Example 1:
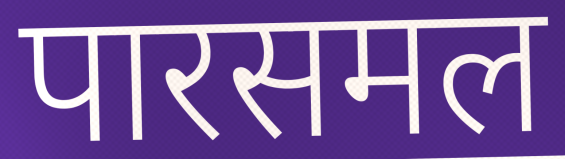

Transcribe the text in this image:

पारसमल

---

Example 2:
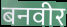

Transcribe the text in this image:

बनवीर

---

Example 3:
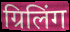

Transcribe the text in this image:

ग्रिलिंग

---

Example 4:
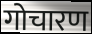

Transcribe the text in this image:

गोचारण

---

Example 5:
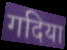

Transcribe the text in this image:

गदिया